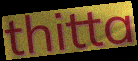
thitta